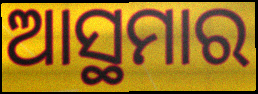
ଆସ୍ଥମାର